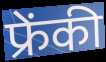
फ्रेंकी